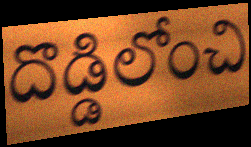
దొడ్డిలోంచి